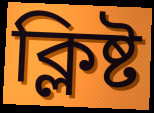
ক্লিষ্ট